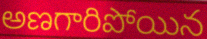
అణగారిపోయిన